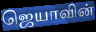
ஜெயாவின்